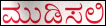
ಮುಡಿಸಲಿ